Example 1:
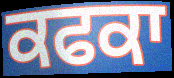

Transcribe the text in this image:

ਕਫਕਾ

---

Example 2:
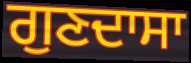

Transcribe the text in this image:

ਗੁਣਦਾਸਾ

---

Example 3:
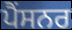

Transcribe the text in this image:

ਪੈਂਸਨਰ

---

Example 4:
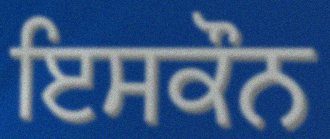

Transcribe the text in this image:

ਇਸਕੌਨ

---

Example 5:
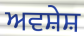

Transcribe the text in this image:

ਅਵਸ਼ੇਸ਼